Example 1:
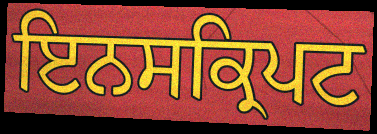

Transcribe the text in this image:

ਇਨਸਕ੍ਰਿਪਟ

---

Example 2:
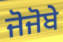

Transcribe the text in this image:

ਜੋਜੋਬੇ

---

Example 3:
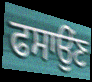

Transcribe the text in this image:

ਫਸਾਉਂਣ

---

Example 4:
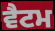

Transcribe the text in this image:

ਵੈਟਮ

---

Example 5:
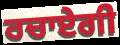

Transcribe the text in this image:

ਰਚਾਏਗੀ